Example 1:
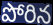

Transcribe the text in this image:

పోరిన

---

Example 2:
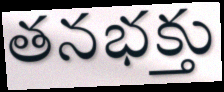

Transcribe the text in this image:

తనభక్తు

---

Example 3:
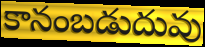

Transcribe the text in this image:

కానంబడుదువు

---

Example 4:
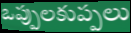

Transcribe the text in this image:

ఒప్పులకుప్పలు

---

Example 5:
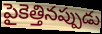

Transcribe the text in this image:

పైకెత్తినప్పుడు